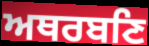
ਅਥਰਬਣਿ